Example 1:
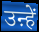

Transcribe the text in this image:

उऩ्हें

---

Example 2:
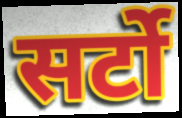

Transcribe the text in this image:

सर्टो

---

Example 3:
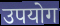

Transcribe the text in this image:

उपयोग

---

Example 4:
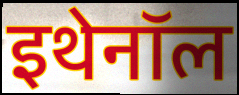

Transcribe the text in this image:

इथेनॉल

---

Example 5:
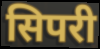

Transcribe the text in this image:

सिपरी